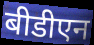
बीडीएन